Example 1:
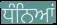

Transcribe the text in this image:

ਧੰਨਿਆਂ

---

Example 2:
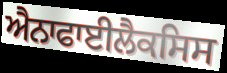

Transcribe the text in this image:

ਐਨਾਫਾਈਲੈਕਸਿਸ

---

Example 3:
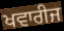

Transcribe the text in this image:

ਖਵਾਰੀਜ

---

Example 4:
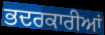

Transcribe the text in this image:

ਭਦਰਕਾਰੀਆਂ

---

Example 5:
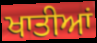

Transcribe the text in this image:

ਖਾਤੀਆਂ